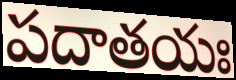
పదాతయః